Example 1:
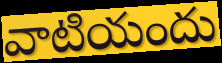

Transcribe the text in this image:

వాటియందు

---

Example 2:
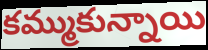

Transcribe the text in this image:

కమ్ముకున్నాయి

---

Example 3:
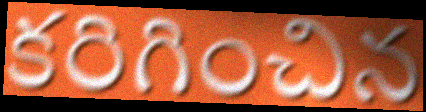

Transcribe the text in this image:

కరిగించిన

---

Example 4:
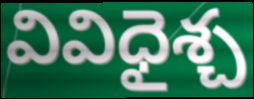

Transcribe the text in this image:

వివిధైశ్చ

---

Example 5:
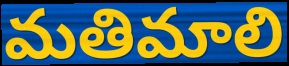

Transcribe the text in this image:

మతిమాలి